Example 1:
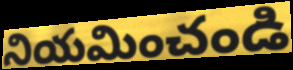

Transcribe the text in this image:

నియమించండి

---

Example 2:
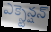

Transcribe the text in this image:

ఎక్స్టెన్షన్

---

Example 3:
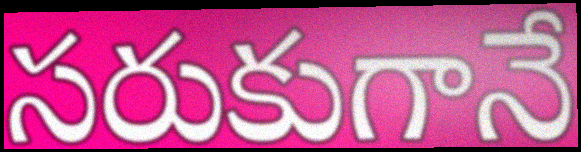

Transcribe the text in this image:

సరుకుగానే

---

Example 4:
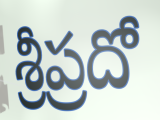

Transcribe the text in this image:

శ్రీప్రదో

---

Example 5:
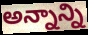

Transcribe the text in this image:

అన్నాన్ని